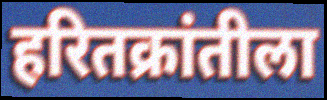
हरितक्रांतीला